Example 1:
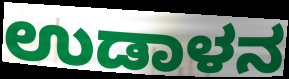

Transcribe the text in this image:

ಉಡಾಳನ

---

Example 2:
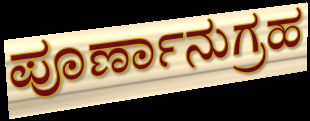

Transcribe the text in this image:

ಪೂರ್ಣಾನುಗ್ರಹ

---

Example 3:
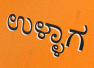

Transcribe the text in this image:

ಉಳ್ಳಾಗ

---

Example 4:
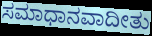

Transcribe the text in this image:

ಸಮಾಧಾನವಾದೀತು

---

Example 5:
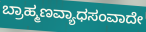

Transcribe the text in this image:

ಬ್ರಾಹ್ಮಣವ್ಯಾಧಸಂವಾದೇ